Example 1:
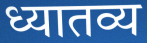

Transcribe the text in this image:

ध्यातव्य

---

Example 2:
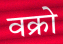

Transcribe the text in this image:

वक्रो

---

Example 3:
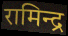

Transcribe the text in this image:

रामिन्द्र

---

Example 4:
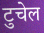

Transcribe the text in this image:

टुचेल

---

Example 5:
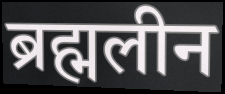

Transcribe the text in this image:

ब्रह्मलीन